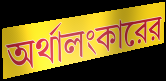
অর্থালংকারের